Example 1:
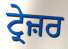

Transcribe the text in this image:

ਟ੍ਰੇਜ਼ਰ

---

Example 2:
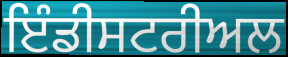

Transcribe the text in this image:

ਇੰਡੀਸਟਰੀਅਲ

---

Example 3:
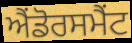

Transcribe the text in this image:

ਐਂਡੋਰਸਮੈਂਟ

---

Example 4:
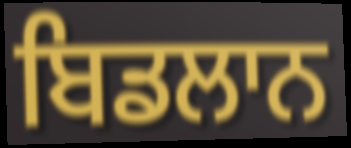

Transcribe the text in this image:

ਬਿਡਲਾਨ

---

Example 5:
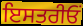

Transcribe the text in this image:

ਇਸਤਰੀਓਂ